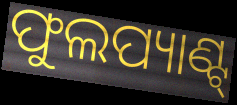
ଫୁଲପ୍ୟାଣ୍ଟ୍